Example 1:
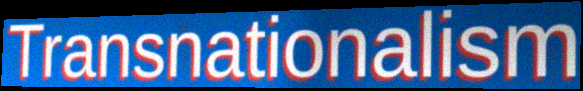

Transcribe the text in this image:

Transnationalism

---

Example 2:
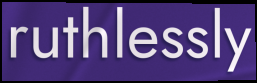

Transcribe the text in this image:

ruthlessly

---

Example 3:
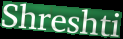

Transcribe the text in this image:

Shreshti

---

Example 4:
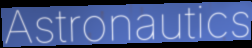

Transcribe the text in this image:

Astronautics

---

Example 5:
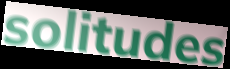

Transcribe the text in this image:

solitudes